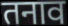
तनाव